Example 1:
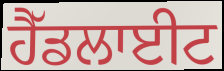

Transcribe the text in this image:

ਹੈੱਡਲਾਈਟ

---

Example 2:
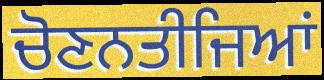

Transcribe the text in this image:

ਚੋਣਨਤੀਜਿਆਂ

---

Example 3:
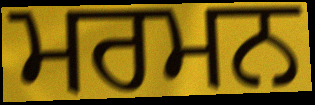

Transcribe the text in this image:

ਮਰਮਨ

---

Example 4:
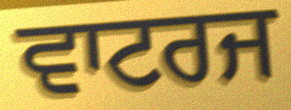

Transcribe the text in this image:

ਵਾਟਰਜ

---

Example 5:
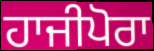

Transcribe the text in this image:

ਹਾਜੀਪੋਰਾ